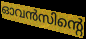
ഓവൻസിന്റെ